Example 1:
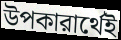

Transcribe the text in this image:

উপকারার্থেই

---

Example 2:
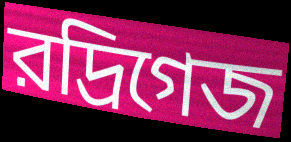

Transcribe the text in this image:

রদ্রিগেজ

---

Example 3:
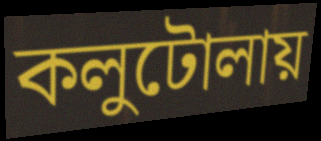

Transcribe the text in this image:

কলুটোলায়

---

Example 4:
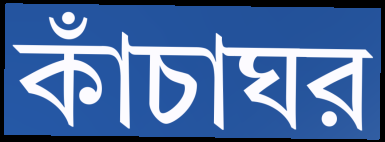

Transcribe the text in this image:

কাঁচাঘর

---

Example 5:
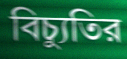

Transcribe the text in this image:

বিচ্যুতির